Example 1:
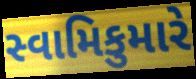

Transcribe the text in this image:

સ્વામિકુમારે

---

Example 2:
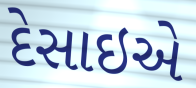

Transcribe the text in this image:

દેસાઇએ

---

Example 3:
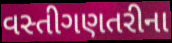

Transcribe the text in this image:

વસ્તીગણતરીના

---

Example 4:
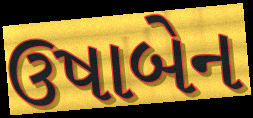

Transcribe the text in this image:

ઉષાબેન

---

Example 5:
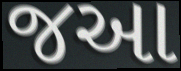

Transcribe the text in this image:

જઆ